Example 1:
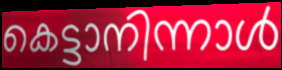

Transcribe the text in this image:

കെട്ടാനിന്നാൾ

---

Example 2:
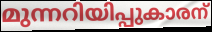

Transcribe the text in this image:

മുന്നറിയിപ്പുകാരന്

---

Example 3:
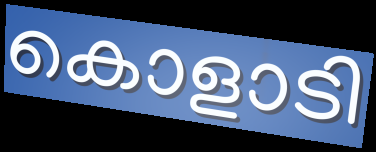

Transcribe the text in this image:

കൊളാടി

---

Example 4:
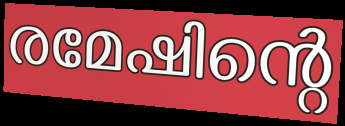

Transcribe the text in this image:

രമേഷിന്റെ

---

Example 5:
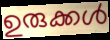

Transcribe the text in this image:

ഉരുക്കൾ